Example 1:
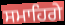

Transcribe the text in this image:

ਸਮਾਹਿਗੇ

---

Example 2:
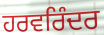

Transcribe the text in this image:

ਹਰਵਰਿੰਦਰ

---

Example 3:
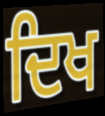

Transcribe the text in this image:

ਦਿਖ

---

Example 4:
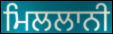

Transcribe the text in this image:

ਮਿਲਲਾਨੀ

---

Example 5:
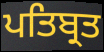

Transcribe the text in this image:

ਪਤਿਬ੍ਰਤ